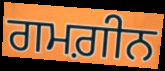
ਗਮਗ਼ੀਨ